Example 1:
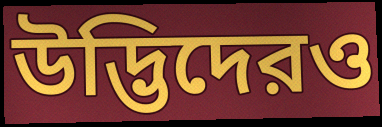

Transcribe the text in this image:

উদ্ভিদেরও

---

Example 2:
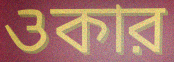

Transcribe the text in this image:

ওকার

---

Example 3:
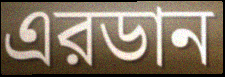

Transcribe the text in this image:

এরডান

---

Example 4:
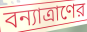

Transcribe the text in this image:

বন্যাত্রাণের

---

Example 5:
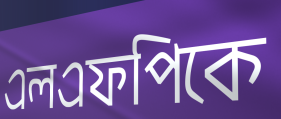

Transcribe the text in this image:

এলএফপিকে